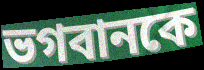
ভগবানকে